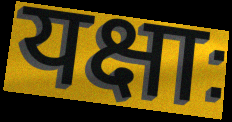
यक्षाः